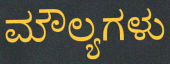
ಮೌಲ್ಯಗಳು